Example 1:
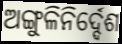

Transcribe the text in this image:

ଅଙ୍ଗୁଳିନିର୍ଦ୍ଦେଶ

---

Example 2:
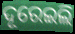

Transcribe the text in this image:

ଦୂରେଇଲି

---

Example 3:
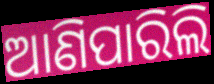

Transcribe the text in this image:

ଆଣିପାରିଲି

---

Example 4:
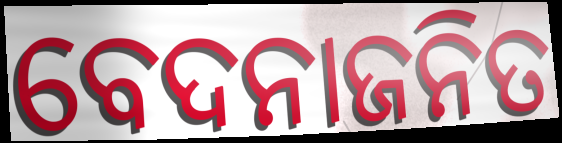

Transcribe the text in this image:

ବେଦନାଜନିତ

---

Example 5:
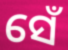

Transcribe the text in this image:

ସେଁ